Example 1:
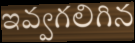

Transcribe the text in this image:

ఇవ్వగలిగిన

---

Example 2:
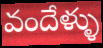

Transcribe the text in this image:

వందేళ్ళు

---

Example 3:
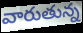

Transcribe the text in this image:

వారుతున్న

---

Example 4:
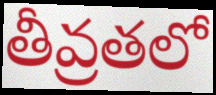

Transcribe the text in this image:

తీవ్రతలో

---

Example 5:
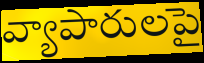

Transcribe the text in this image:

వ్యాపారులపై